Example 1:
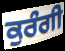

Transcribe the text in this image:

ਕੁਰੰਗੀ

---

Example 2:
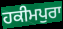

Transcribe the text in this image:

ਹਕੀਮਪੁਰਾ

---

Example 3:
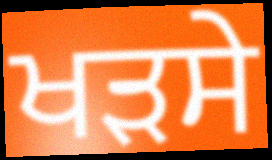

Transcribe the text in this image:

ਖੜਸੇ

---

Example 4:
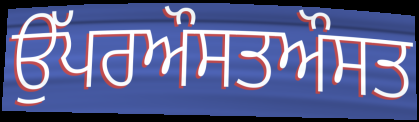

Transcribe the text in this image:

ਉੱਪਰਔਸਤਔਸਤ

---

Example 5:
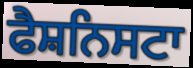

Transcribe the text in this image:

ਫੈਸ਼ਨਿਸਟਾ